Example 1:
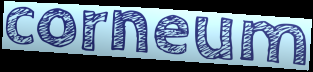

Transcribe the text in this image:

corneum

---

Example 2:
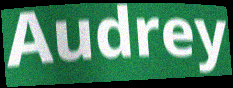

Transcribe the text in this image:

Audrey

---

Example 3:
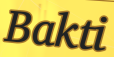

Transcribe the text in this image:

Bakti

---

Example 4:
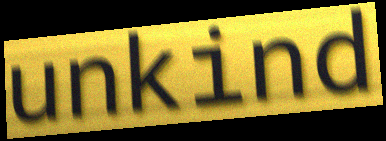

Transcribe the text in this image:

unkind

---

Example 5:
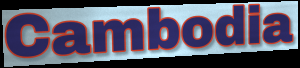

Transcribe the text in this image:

Cambodia